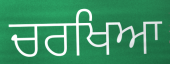
ਚਰਖਿਆ